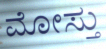
ಮೋಸ್ತು